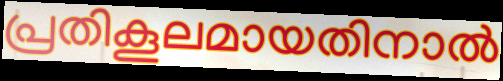
പ്രതികൂലമായതിനാൽ